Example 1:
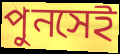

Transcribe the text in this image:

পুনসেই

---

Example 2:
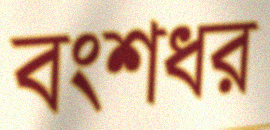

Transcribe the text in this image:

বংশধর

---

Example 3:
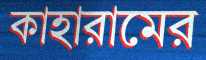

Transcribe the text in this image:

কাহারামের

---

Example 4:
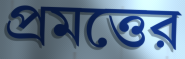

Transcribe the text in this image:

প্রমত্তের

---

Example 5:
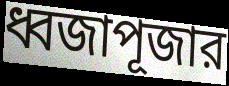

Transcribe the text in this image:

ধ্বজাপূজার